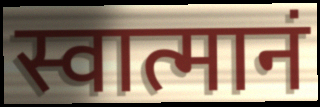
स्वात्मानं